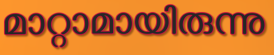
മാറ്റാമായിരുന്നു